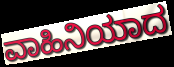
ವಾಹಿನಿಯಾದ